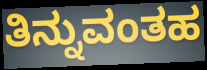
ತಿನ್ನುವಂತಹ